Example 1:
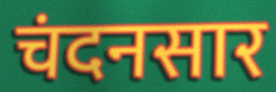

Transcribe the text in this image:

चंदनसार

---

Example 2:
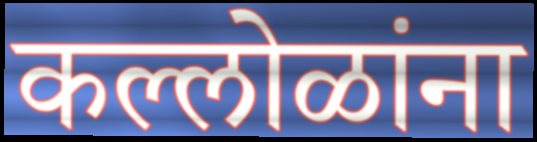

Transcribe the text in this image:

कल्लोळांना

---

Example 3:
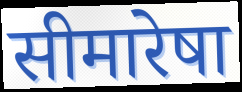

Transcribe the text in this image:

सीमारेषा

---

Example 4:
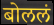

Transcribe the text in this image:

बोललं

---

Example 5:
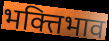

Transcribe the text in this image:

भक्तिभाव